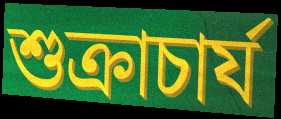
শুক্রাচার্য